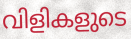
വിളികളുടെ